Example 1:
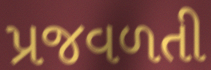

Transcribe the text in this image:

પ્રજવળતી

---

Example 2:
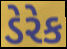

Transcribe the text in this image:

ડેરેક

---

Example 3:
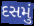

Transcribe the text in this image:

દસમું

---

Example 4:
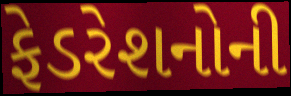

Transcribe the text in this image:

ફેડરેશનોની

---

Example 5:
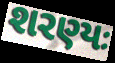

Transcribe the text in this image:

શરણ્યઃ